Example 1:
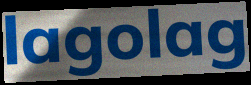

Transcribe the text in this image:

lagolag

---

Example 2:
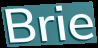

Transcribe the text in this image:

Brie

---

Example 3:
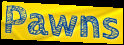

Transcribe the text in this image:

Pawns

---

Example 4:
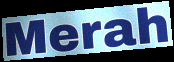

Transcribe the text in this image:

Merah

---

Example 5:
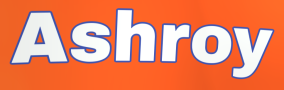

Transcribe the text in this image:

Ashroy